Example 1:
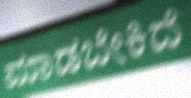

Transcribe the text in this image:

ಮಾಡಬೇಕಿದೆ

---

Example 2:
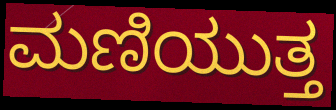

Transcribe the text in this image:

ಮಣಿಯುತ್ತ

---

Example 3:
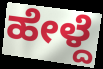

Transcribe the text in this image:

ಹೇಳ್ದೆ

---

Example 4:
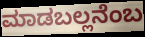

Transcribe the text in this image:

ಮಾಡಬಲ್ಲನೆಂಬ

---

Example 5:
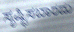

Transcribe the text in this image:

ಸೃಷ್ಟಿಸಬಾರದು